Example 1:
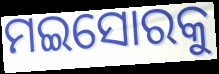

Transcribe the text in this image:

ମଇସୋରକୁ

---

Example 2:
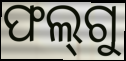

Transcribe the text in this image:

ଫଲ୍‌ଗୁ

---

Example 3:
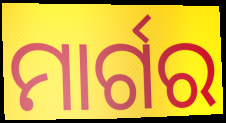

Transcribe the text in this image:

ମାର୍ଗର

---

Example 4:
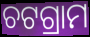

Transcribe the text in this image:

ଚଟଗ୍ରାମ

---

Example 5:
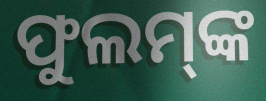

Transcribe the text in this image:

ଫୁଲମ୍‌ଙ୍କ